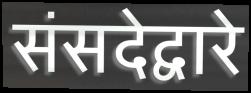
संसदेद्वारे